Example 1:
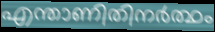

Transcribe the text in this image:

എന്താണിതിനർത്ഥം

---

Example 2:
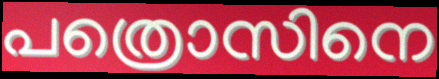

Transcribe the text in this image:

പത്രൊസിനെ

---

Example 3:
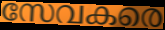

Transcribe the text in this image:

സേവകരെ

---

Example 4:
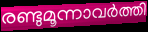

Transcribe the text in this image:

രണ്ടുമൂന്നാവർത്തി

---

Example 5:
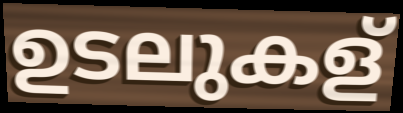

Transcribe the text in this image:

ഉടലുകള്